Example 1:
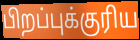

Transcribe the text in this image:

பிறப்புக்குரிய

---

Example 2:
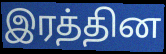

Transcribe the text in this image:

இரத்தின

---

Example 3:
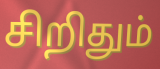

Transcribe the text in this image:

சிறிதும்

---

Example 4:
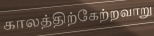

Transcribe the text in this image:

காலத்திற்கேற்றவாறு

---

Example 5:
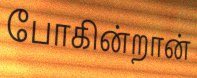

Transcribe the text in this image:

போகின்றான்